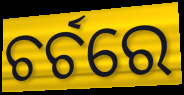
ଚର୍ଚରେ